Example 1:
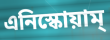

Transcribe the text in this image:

এনিস্কোয়াম্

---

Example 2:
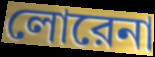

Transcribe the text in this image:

লোরেনা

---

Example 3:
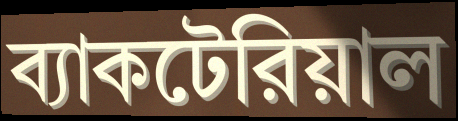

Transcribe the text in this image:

ব্যাকটেরিয়াল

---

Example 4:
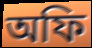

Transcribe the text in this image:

অফি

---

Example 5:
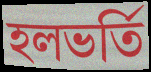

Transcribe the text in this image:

হলভর্তি